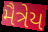
મૈત્રેય